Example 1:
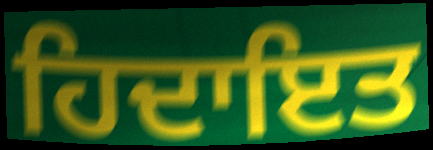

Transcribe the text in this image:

ਹਿਦਾਇਤ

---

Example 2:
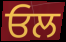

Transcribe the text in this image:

ਓਲ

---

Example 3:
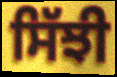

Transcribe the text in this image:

ਸਿੱਝੀ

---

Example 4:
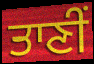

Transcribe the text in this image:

ਤਾਣੀਂ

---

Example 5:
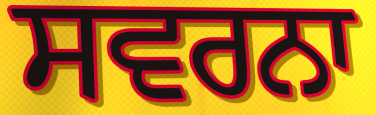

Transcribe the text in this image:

ਸਵਰਨਾ